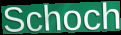
Schoch